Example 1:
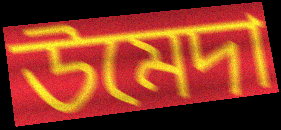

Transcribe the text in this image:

উমেদা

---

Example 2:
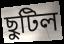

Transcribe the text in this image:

ছুটিল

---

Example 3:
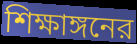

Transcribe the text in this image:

শিক্ষাঙ্গনের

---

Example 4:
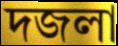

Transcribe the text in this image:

দজলা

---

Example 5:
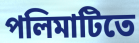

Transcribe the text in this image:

পলিমাটিতে